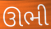
ઊભી